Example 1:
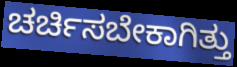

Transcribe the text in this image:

ಚರ್ಚಿಸಬೇಕಾಗಿತ್ತು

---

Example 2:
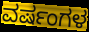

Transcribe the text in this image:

ವರ್ಷಂಗಳ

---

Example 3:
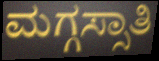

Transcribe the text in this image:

ಮಗ್ಗಸ್ಸಾತಿ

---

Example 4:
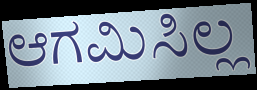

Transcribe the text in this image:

ಆಗಮಿಸಿಲ್ಲ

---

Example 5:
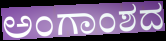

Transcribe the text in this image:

ಅಂಗಾಂಶದ